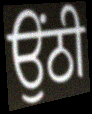
ਉਂਠੀ